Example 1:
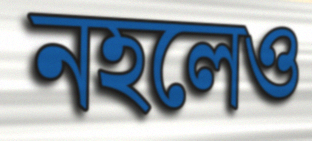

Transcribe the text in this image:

নহলেও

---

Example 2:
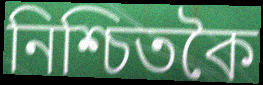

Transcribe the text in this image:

নিশ্চিতকৈ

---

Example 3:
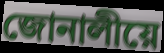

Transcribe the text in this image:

জোনালীয়ে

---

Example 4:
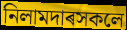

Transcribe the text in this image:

নিলামদাৰসকলে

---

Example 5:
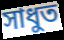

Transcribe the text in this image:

সাধুত